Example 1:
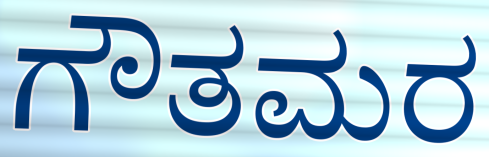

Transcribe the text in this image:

ಗೌತಮರ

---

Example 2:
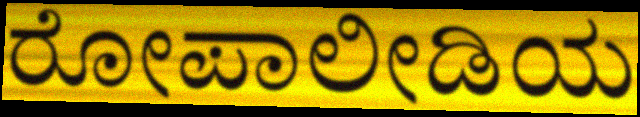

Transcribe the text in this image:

ರೋಪಾಲೀಡಿಯ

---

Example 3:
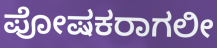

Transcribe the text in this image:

ಪೋಷಕರಾಗಲೀ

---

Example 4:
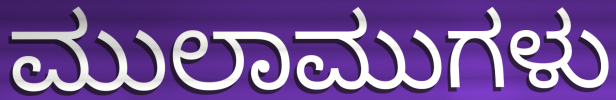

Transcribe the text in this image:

ಮುಲಾಮುಗಳು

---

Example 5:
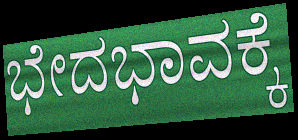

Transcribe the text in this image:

ಭೇದಭಾವಕ್ಕೆ